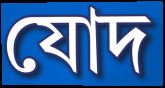
যোদ